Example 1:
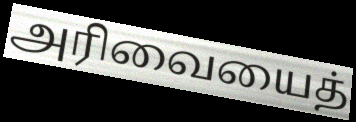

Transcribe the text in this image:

அரிவையைத்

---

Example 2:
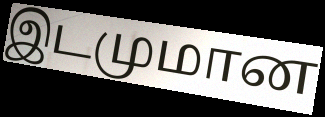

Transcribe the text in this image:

இடமுமான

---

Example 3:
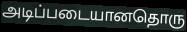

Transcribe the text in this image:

அடிப்படையானதொரு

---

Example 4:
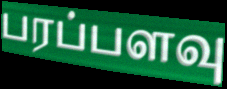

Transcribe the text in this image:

பரப்பளவு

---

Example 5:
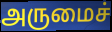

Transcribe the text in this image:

அருமைச்